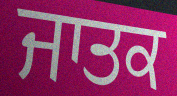
ਜਾਤਕ